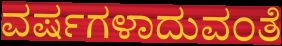
ವರ್ಷಗಳಾದುವಂತೆ